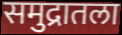
समुद्रातला